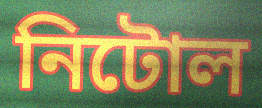
নিটোল